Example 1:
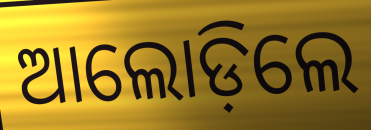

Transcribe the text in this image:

ଆଲୋଡ଼ିଲେ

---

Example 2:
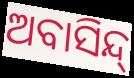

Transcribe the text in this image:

ଅବାସିନ୍ଦ୍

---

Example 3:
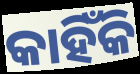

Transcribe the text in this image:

କାହିଁକି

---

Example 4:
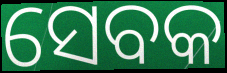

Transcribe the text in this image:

ସେବକ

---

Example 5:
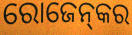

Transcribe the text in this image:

ରୋଜେନ୍‌କର